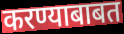
करण्याबाबत